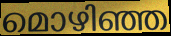
മൊഴിഞ്ഞ